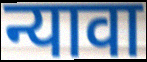
न्यावा